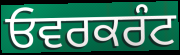
ਓਵਰਕਰੰਟ